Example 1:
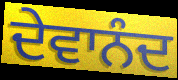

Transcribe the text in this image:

ਦੇਵਾਨੰਦ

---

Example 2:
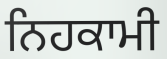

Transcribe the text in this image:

ਨਿਹਕਾਮੀ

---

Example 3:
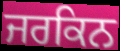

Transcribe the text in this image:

ਜਰਕਿਨ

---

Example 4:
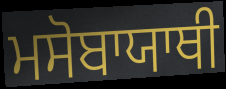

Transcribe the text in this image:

ਮਸੋਬਾਯਾਥੀ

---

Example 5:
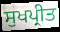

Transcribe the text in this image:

ਸੁਖਪ੍ਰੀਤ